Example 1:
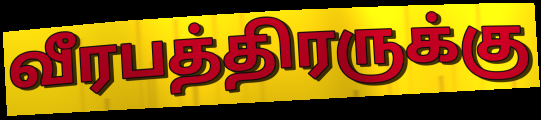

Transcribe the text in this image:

வீரபத்திரருக்கு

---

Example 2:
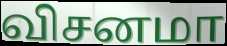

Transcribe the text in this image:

விசனமா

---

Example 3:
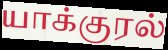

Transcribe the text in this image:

யாக்குரல்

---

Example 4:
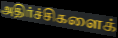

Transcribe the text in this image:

அதிர்ச்சிகளைக்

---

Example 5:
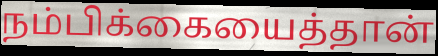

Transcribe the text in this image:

நம்பிக்கையைத்தான்